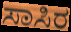
ಸಾಸಿರ